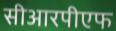
सीआरपीएफ